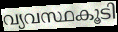
വ്യവസ്ഥകൂടി